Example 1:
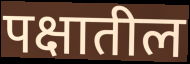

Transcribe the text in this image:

पक्षातील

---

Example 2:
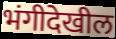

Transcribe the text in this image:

भंगीदेखील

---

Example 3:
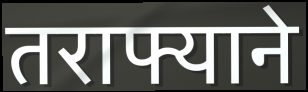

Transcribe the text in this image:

तराफ्याने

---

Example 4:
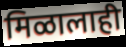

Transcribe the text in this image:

मिळालाही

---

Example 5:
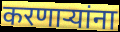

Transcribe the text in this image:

करणार्‍यांना